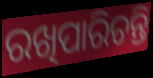
ରଖିପାରିଚନ୍ତି